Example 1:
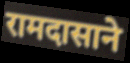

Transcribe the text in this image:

रामदासाने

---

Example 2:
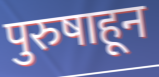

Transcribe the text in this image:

पुरुषाहून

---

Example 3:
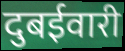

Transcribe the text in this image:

दुबईवारी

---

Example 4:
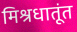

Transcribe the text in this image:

मिश्रधातूंत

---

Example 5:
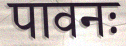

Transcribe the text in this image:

पावनः